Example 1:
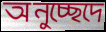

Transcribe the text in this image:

অনুচ্ছেদে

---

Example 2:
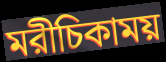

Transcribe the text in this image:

মরীচিকাময়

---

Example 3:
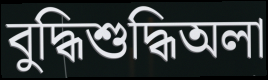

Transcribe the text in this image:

বুদ্ধিশুদ্ধিঅলা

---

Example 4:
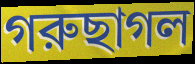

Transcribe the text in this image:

গরুছাগল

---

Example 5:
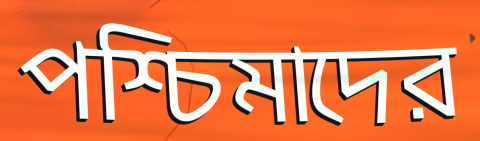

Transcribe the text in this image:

পশ্চিমাদের